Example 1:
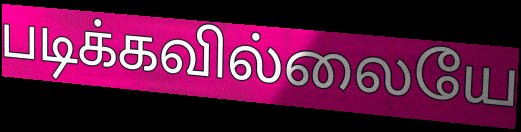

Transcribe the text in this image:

படிக்கவில்லையே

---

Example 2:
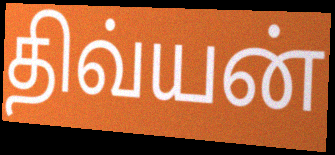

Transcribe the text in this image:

திவ்யன்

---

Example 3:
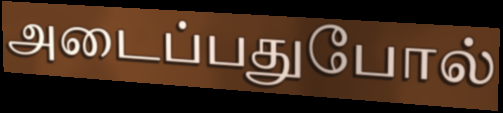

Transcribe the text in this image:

அடைப்பதுபோல்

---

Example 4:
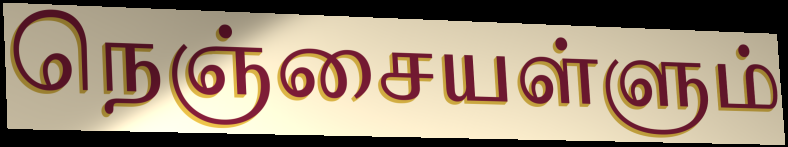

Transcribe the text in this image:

நெஞ்சையள்ளும்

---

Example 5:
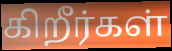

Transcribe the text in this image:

கிறீர்கள்